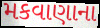
મકવાણાના